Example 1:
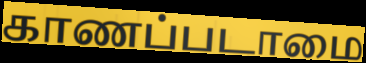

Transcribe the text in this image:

காணப்படாமை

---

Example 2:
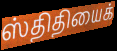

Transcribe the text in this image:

ஸ்திதியைக்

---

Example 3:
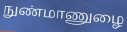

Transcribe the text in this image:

நுண்மாணுழை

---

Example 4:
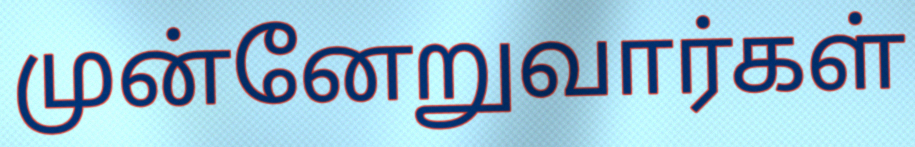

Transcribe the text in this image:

முன்னேறுவார்கள்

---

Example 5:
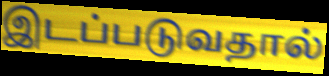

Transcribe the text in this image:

இடப்படுவதால்